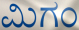
ಮಿಗಂ